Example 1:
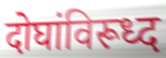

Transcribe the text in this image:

दोघांविरूध्द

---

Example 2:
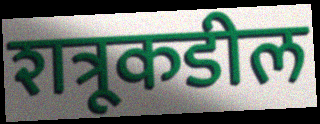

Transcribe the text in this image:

शत्रूकडील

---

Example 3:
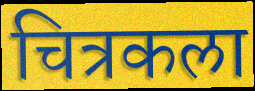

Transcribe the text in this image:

चित्रकला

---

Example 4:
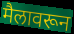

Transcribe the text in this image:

मैलावरून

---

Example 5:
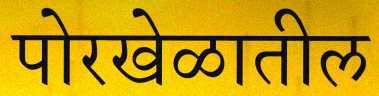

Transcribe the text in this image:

पोरखेळातील